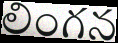
లింగన